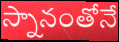
స్నానంతోనే